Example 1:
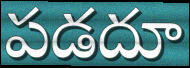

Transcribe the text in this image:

పడదూ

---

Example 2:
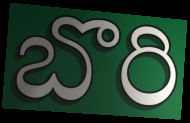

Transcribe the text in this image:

బొరి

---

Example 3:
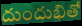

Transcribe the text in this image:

దుందుభితో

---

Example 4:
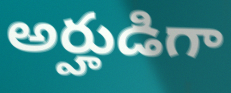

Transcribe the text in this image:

అర్హుడిగా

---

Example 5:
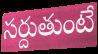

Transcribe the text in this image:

సర్దుతుంటే